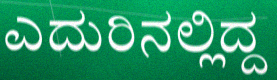
ಎದುರಿನಲ್ಲಿದ್ದ